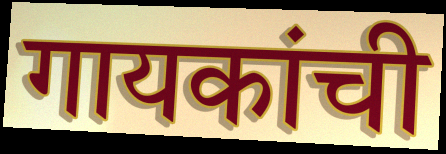
गायकांची